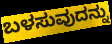
ಬಳಸುವುದನ್ನು